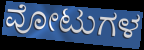
ವೋಟುಗಳ